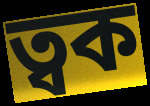
ত্বক